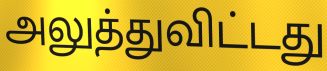
அலுத்துவிட்டது